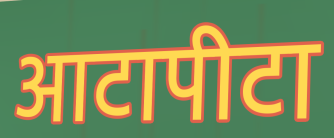
आटापीटा